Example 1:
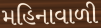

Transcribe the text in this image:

મહિનાવાળી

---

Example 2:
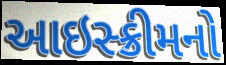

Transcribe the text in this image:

આઇસ્ક્રીમનો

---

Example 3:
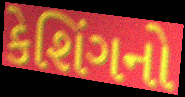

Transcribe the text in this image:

કેશિંગનો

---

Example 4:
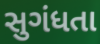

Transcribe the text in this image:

સુગંધતા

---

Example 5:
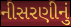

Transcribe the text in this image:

નીસરણીનું